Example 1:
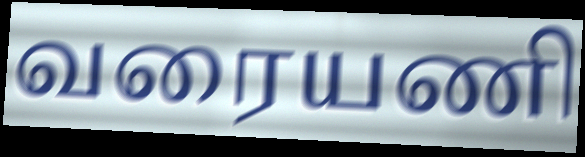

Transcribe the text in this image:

வரையணி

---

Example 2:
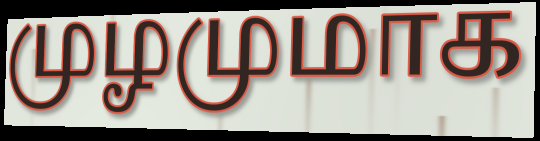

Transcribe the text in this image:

முழமுமாக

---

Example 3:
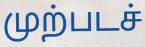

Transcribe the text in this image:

முற்படச்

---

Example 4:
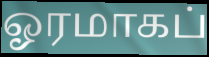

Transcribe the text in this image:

ஓரமாகப்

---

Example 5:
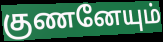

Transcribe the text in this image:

குணனேயும்